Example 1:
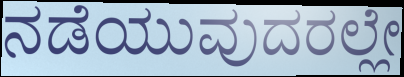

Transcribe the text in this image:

ನಡೆಯುವುದರಲ್ಲೇ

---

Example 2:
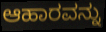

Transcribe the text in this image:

ಆಹಾರವನ್ನು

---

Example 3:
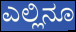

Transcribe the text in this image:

ಎಲ್ಲಿನೂ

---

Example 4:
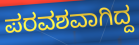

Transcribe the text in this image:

ಪರವಶವಾಗಿದ್ದ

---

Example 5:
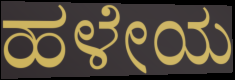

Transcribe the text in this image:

ಹಳೇಯ